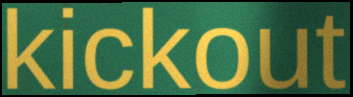
kickout